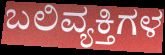
ಬಲಿವ್ಯಕ್ತಿಗಳ